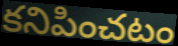
కనిపించటం